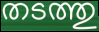
തടത്തു